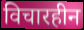
विचारहीन